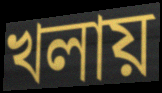
খলায়